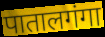
पातालगंगा